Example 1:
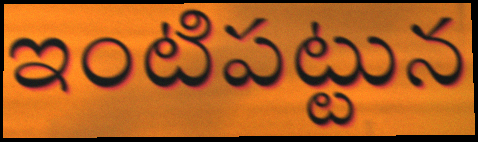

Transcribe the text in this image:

ఇంటిపట్టున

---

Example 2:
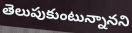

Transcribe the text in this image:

తెలుపుకుంటున్నానని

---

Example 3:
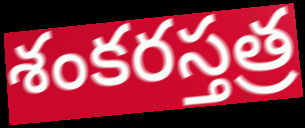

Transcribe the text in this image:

శంకరస్తత్ర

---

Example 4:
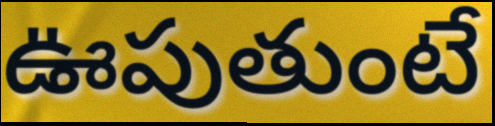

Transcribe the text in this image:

ఊపుతుంటే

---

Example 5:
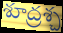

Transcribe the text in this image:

శూద్రశ్చ